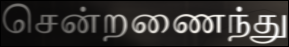
சென்றணைந்து